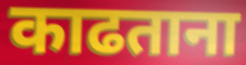
काढताना